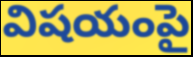
విషయంపై